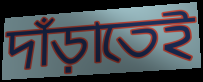
দাঁড়াতেই